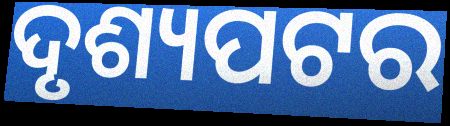
ଦୃଶ୍ୟପଟର